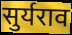
सुर्यराव